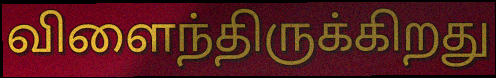
விளைந்திருக்கிறது